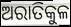
ଅରାତିକୁଳ